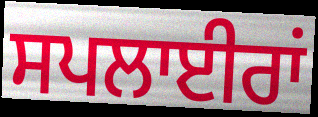
ਸਪਲਾਈਰਾਂ